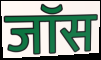
जॉस